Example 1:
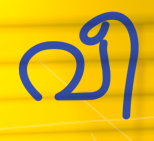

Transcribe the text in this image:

വീ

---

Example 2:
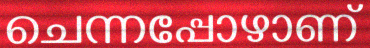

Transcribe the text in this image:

ചെന്നപ്പോഴാണ്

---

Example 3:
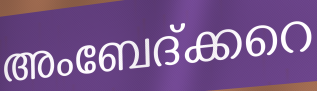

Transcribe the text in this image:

അംബേദ്ക്കറെ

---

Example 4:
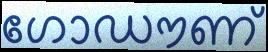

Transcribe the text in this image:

ഗോഡൗണ്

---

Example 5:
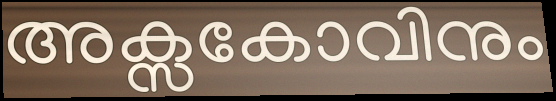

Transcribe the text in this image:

അക്സകോവിനും